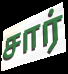
சார்